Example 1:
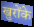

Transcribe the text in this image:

खुरोंके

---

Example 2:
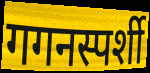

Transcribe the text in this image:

गगनस्पर्शी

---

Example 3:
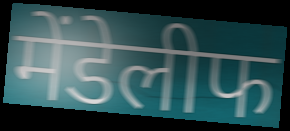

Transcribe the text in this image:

मेंडेलीफ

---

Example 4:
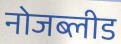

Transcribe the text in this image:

नोजब्लीड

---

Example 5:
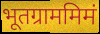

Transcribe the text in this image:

भूतग्राममिमं